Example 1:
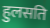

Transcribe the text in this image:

हुलसति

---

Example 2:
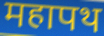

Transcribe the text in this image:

महापथ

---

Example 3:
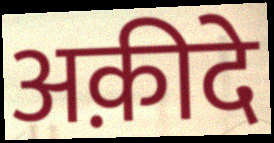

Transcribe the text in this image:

अक़ीदे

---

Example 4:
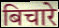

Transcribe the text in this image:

बिचारे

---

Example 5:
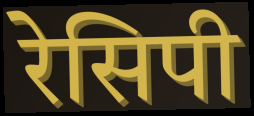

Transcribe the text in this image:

रेसिपी